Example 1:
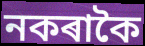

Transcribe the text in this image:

নকৰাকৈ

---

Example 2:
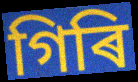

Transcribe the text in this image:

গিৰি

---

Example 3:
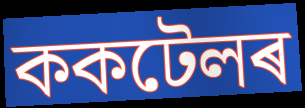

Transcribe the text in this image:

ককটেলৰ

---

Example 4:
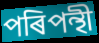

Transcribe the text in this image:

পৰিপন্থী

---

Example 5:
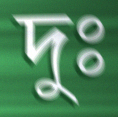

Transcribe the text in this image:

দুঃ